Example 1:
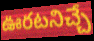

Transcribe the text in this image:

ఊరటనిచ్చే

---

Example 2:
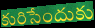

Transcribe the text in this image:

కురిసేందుకు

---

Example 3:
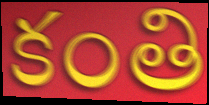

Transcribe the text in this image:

కంతి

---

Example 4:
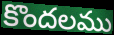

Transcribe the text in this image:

కొందలము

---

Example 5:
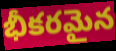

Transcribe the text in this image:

భీకరమైన